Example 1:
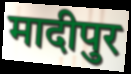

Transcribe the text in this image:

मादीपुर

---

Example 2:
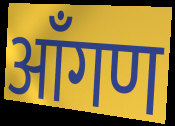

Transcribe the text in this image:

आँगण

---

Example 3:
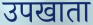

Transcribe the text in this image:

उपखाता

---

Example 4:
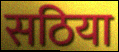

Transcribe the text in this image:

सठिया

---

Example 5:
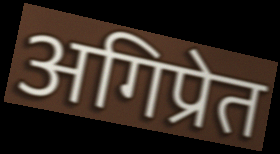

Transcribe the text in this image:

अगिप्रेत